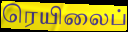
ரெயிலைப்